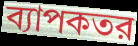
ব্যাপকতর